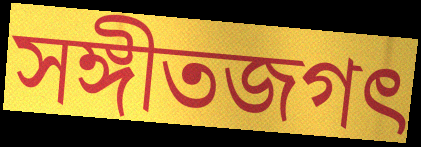
সঙ্গীতজগৎ